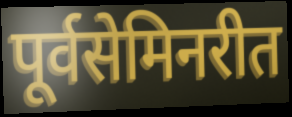
पूर्वसेमिनरीत